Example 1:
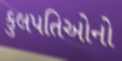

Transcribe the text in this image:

કુલપતિઓનો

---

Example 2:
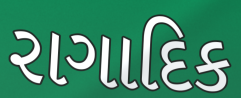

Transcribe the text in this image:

રાગાદિક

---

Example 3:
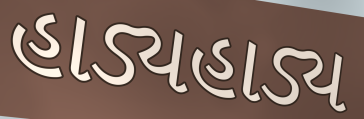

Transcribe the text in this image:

હાડ્યહાડ્ય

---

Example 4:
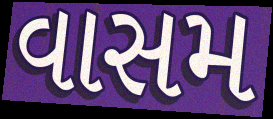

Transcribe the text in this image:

વાસમ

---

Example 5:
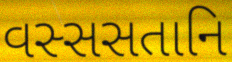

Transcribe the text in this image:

વસ્સસતાનિ